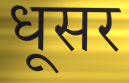
धूसर